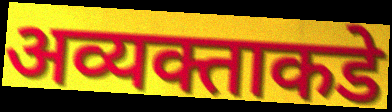
अव्यक्ताकडे